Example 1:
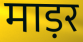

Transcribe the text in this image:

माड़र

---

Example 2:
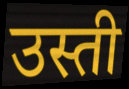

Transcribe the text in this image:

उस्ती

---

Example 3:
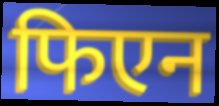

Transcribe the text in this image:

फिएन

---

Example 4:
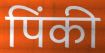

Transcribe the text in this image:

पिंकी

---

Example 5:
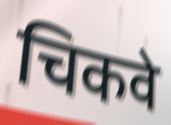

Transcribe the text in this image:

चिकवे